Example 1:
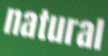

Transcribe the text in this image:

natural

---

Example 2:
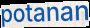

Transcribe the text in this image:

potanan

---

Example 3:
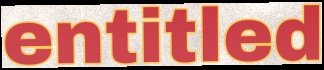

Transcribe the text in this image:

entitled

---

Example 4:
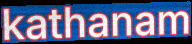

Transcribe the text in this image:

kathanam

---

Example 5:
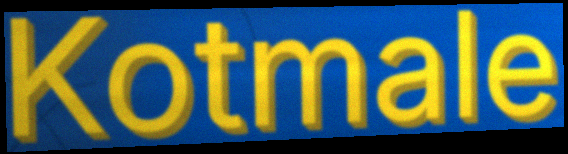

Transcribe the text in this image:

Kotmale